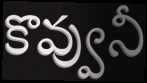
కొవ్వునీ